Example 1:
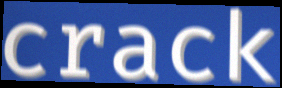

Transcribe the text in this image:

crack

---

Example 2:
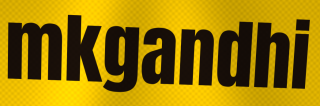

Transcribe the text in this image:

mkgandhi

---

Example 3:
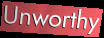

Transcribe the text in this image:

Unworthy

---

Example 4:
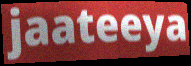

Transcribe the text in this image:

jaateeya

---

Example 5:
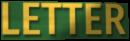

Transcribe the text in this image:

LETTER